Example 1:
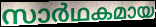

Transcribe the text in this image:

സാർഥകമായ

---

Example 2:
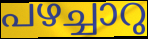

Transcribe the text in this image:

പഴച്ചാറു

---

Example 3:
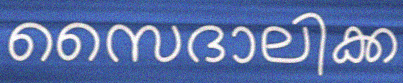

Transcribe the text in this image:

സൈദാലിക്ക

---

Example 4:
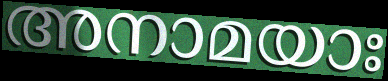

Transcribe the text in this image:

അനാമയാഃ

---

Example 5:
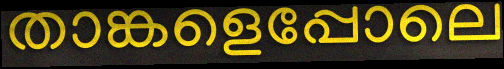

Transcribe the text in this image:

താങ്കളെപ്പോലെ